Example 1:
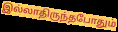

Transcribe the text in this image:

இல்லாதிருந்தபோதும்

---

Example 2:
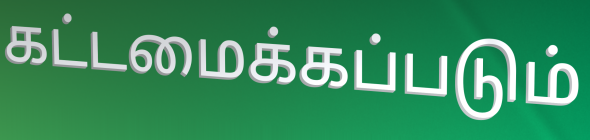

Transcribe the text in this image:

கட்டமைக்கப்படும்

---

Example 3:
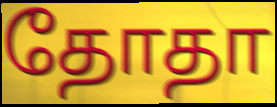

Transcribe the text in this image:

தோதா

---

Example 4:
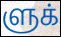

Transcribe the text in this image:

ளுக்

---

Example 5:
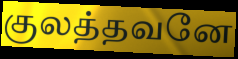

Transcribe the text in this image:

குலத்தவனே